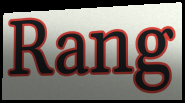
Rang